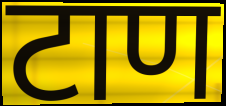
टाण